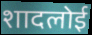
शादलोई